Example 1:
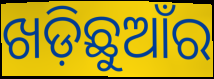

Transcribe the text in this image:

ଖଡ଼ିଛୁଆଁର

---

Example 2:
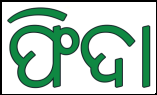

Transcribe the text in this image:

ଫିଦା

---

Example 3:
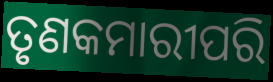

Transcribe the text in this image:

ତୃଣକମାରୀପରି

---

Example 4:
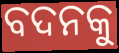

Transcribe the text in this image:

ବଦନକୁ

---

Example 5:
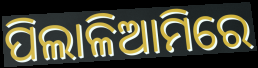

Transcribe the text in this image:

ପିଲାଳିଆମିରେ